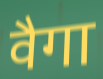
वैगा